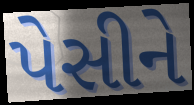
પેસીને